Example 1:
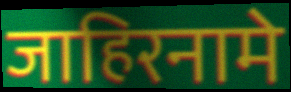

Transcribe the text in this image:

जाहिरनामे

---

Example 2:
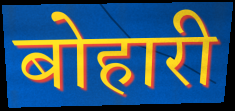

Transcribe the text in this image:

बोहारी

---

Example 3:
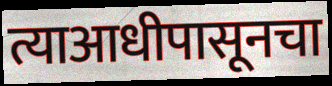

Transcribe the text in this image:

त्याआधीपासूनचा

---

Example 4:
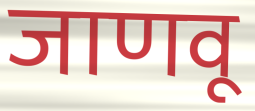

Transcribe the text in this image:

जाणवू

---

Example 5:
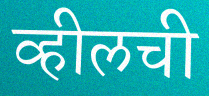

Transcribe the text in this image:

व्हीलची